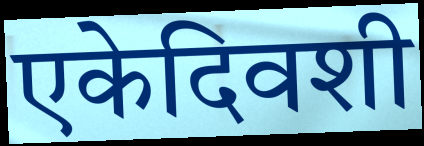
एकेदिवशी